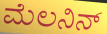
ಮೆಲನಿನ್